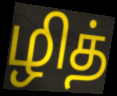
ழித்